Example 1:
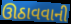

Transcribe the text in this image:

ઊઠાવવાની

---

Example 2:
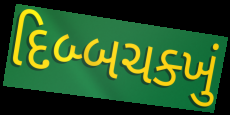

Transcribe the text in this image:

દિબ્બચક્ખું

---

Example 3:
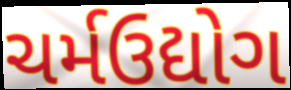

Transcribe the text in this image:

ચર્મઉદ્યોગ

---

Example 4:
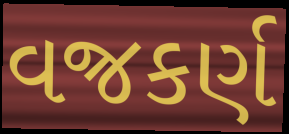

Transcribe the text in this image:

વજ્રકર્ણ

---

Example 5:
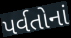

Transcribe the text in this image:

પર્વતોનાં